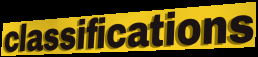
classifications